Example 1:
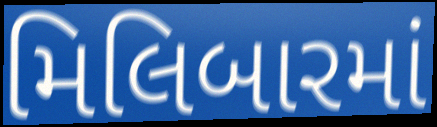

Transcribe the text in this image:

મિલિબારમાં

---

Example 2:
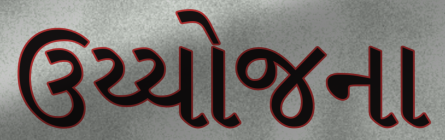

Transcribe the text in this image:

ઉય્યોજના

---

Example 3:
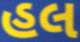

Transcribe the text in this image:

હલ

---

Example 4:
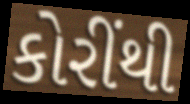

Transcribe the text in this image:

કોરીંથી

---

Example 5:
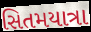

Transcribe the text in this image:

સિતમયાત્રા